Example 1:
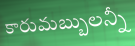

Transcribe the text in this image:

కారుమబ్బులన్నీ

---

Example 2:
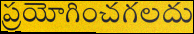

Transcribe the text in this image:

ప్రయోగించగలదు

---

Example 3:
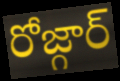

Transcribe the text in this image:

రోజ్గార్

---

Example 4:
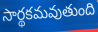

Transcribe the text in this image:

సార్థకమవుతుంది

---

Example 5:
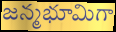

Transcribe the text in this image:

జన్మభూమిగా